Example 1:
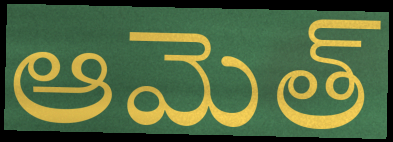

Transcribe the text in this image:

ఆమెత్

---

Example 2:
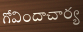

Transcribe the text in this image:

గోవిందాచార్య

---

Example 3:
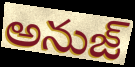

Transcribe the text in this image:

అనుజ్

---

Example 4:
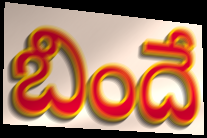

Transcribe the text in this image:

బిందే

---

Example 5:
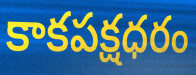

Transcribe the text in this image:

కాకపక్షధరం